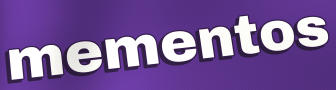
mementos